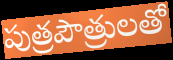
పుత్రపౌత్రులతో